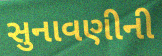
સુનાવણીની